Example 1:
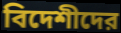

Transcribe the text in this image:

বিদেশীদের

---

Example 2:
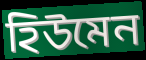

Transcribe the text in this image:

হিউমেন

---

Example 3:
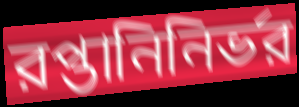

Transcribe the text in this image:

রপ্তানিনির্ভর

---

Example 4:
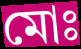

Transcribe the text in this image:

মোঃ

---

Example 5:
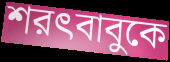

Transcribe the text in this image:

শরৎবাবুকে